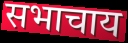
सभाचाय